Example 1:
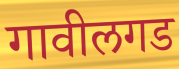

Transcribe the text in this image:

गावीलगड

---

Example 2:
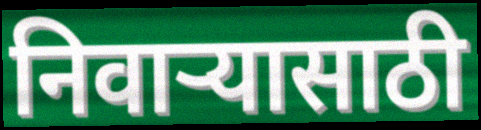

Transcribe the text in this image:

निवाऱ्यासाठी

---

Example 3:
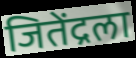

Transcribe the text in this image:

जितेंद्रला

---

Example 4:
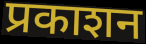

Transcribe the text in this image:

प्रकाशन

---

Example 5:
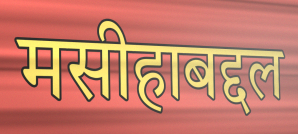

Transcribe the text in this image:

मसीहाबद्दल